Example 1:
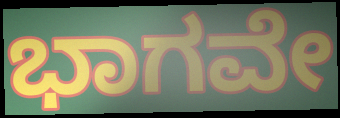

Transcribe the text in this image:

ಭಾಗವೇ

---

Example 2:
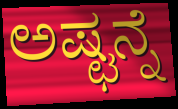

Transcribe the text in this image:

ಅಷ್ಟನ್ನೆ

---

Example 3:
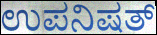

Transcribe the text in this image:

ಉಪನಿಷತ್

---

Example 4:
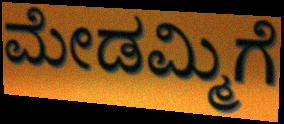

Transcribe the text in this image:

ಮೇಡಮ್ಮಿಗೆ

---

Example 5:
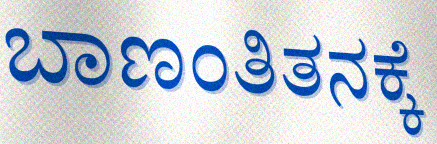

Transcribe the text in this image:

ಬಾಣಂತಿತನಕ್ಕೆ